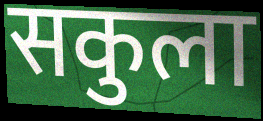
सकुला